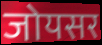
जोयसर